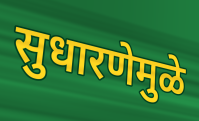
सुधारणेमुळे